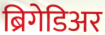
ब्रिगेडिअर